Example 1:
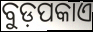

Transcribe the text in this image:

ବୁଡ଼ପକାଏ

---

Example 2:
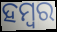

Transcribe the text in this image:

ହମ୍ବର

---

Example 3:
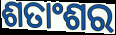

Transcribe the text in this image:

ଶତାଂଶର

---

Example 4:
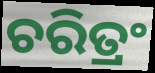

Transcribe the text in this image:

ଚରିତ୍ରଂ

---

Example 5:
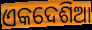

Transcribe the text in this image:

ଏକଦେଶିଆ